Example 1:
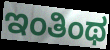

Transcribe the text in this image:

ಇಂತಿಂಥ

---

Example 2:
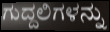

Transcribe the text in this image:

ಗುದ್ದಲಿಗಳನ್ನು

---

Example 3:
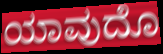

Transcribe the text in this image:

ಯಾವುದೊ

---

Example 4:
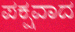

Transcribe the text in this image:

ಪಕ್ಷವಾದ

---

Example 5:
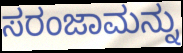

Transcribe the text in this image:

ಸರಂಜಾಮನ್ನು